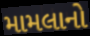
મામલાનો